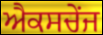
ਐਕਸਚੇਂਜ